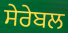
ਸੇਰੇਬਲ